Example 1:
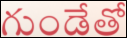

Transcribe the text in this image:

గుండేతో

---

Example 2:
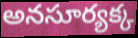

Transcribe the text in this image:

అనసూర్యక్క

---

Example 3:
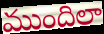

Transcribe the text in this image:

ముందిలా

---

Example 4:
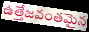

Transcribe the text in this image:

ఉత్తేజవంతమైన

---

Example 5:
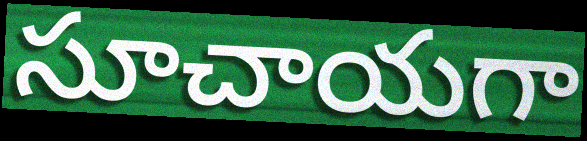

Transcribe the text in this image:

సూచాయగా